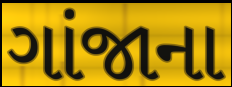
ગાંજાના